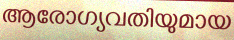
ആരോഗ്യവതിയുമായ